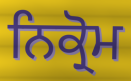
ਨਿਕ੍ਰੋਮ